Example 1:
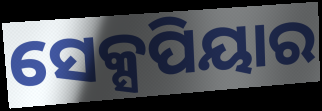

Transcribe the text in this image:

ସେକ୍ସପିୟାର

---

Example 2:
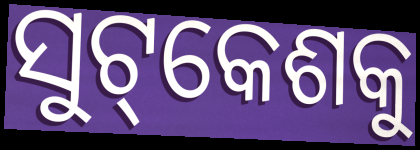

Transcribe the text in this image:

ସୁଟ୍‌କେଶକୁ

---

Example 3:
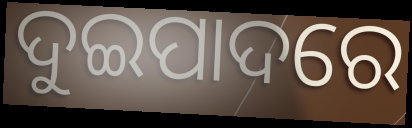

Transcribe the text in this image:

ଦୁଇପାଦରେ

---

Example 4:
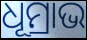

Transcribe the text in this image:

ଧୂମ୍ରାଭ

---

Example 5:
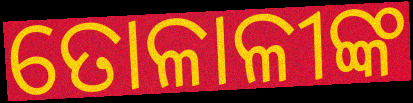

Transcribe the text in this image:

ତୋଳାଳୀଙ୍କ